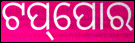
ଟପ୍‌ପୋର